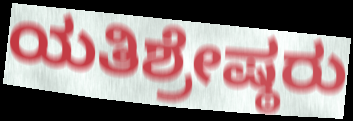
ಯತಿಶ್ರೇಷ್ಠರು